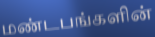
மண்டபங்களின்